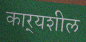
कार्यशील